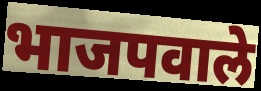
भाजपवाले